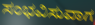
ಸಂಭವಿಸುವಾಗ